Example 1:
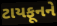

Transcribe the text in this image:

ટાયફૂનને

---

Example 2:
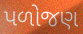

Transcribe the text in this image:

પળોજણ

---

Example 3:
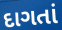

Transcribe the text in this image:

દાગતાં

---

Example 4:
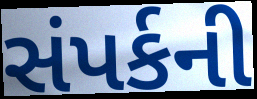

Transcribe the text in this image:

સંપર્કની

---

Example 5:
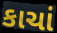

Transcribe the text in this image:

કાચાં